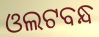
ଓଲଟବନ୍ଧ